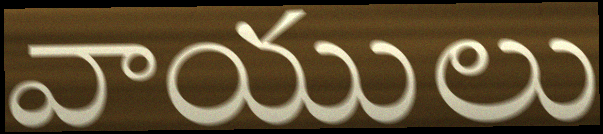
వాయులు